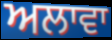
ਅਲਾਵਾ